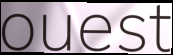
ouest